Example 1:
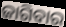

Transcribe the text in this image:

ଜାଗିବାର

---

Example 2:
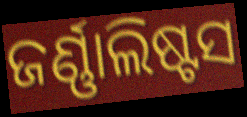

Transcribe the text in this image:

ଜର୍ଣ୍ଣାଲିଷ୍ଟସ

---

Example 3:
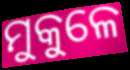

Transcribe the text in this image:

ମୁକୁଳେ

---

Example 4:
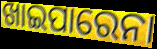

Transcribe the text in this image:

ଖାଇପାରେନା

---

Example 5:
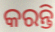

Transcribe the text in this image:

କରନ୍ତି